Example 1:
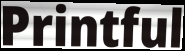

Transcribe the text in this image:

Printful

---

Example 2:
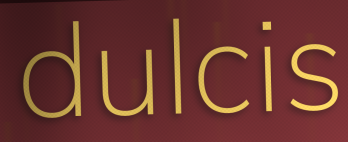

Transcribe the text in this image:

dulcis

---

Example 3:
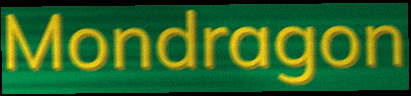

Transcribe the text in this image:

Mondragon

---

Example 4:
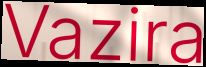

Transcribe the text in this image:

Vazira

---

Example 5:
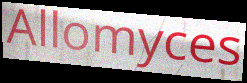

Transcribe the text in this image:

Allomyces